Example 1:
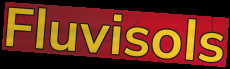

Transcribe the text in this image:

Fluvisols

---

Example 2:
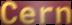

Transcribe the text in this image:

Cern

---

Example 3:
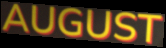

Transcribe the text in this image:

AUGUST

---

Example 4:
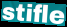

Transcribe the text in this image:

stifle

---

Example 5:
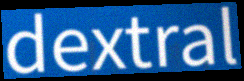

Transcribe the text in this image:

dextral